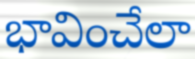
భావించేలా